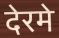
देरमे